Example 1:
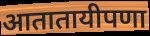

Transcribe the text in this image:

आतातायीपणा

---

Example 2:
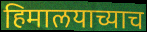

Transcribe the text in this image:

हिमालयाच्याच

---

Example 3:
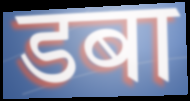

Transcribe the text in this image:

डबा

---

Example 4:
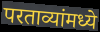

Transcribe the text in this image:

परताव्यांमध्ये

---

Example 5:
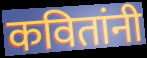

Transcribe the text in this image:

कवितांनी